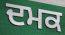
ਦਮਕ